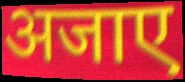
अजाए